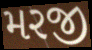
મરજી